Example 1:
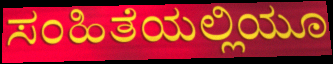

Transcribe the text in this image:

ಸಂಹಿತೆಯಲ್ಲಿಯೂ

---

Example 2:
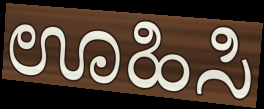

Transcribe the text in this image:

ಊಹಿಸಿ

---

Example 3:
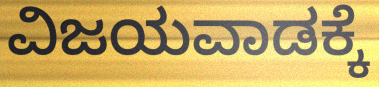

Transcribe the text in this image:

ವಿಜಯವಾಡಕ್ಕೆ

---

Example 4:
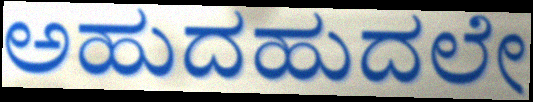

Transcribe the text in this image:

ಅಹುದಹುದಲೇ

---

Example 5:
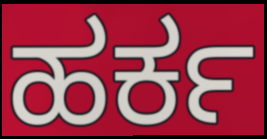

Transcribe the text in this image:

ಹರ್ಕ